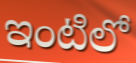
ఇంటిలో